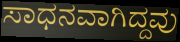
ಸಾಧನವಾಗಿದ್ದವು